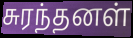
சுரந்தனள்